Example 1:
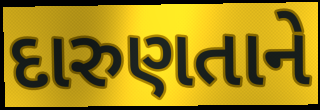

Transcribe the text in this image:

દારુણતાને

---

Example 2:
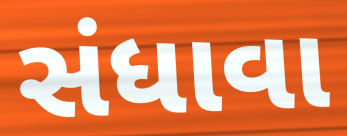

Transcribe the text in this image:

સંધાવા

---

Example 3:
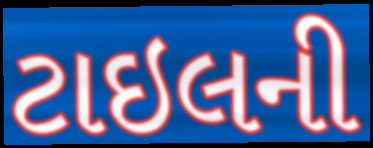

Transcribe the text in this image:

ટાઇલની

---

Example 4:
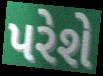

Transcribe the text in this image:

પરેશે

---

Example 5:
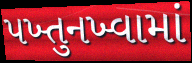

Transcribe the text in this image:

પખ્તુનખ્વામાં